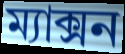
ম্যাক্সন